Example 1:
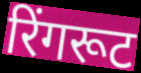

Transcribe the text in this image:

रिंगरूट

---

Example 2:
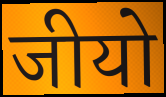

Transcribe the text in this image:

जीयो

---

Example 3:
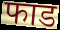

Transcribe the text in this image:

फाड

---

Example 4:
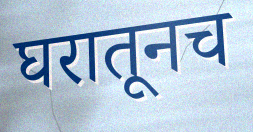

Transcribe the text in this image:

घरातूनच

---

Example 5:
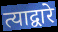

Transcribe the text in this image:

त्याद्वारे